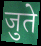
जुते